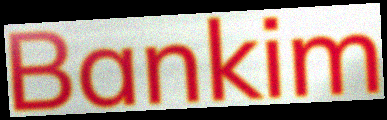
Bankim